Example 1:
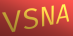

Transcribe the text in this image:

VSNA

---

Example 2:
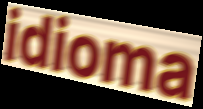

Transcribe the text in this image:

idioma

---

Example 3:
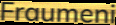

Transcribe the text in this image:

Fraumeni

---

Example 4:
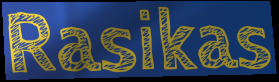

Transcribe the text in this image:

Rasikas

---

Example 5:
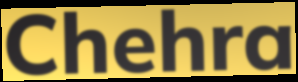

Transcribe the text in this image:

Chehra